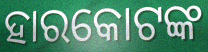
ହାରକୋଟଙ୍କ